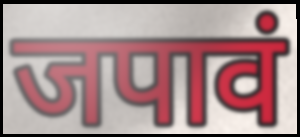
जपावं